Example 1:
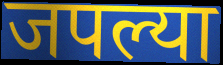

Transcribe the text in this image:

जपल्या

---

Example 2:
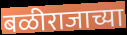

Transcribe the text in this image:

बळीराजाच्या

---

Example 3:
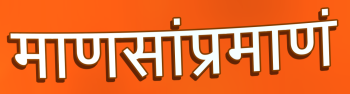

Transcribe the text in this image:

माणसांप्रमाणं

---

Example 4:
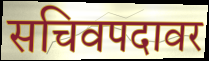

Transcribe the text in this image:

सचिवपदावर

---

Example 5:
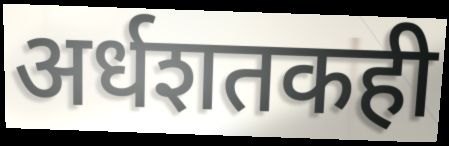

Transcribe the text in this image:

अर्धशतकही